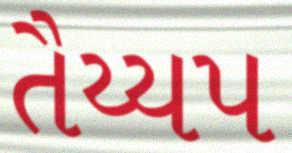
તૈય્યપ